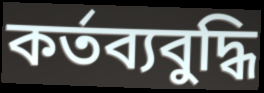
কর্তব্যবুদ্ধি